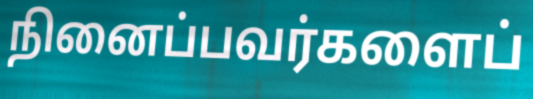
நினைப்பவர்களைப்